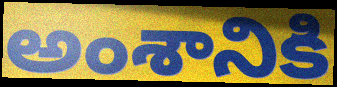
అంశానికి